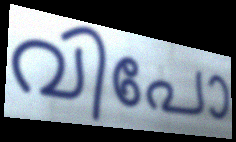
വിപോ